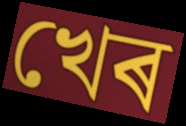
খেৰ